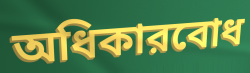
অধিকারবোধ